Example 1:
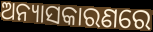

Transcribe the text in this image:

ଅନ୍ୟାସକାରଣରେ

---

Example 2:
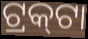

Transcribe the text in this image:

ଟ୍ରକ୍‌ଟା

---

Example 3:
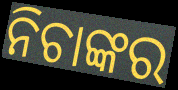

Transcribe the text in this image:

ନିଚାଙ୍କର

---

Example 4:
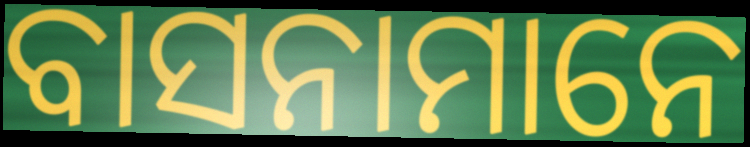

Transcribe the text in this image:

ବାସନାମାନେ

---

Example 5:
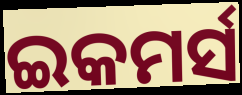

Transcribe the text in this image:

ଇକମର୍ସ